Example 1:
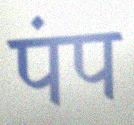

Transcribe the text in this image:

पंप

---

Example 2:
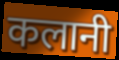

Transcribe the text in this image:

कलानी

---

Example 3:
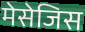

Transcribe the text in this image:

मेसेजिस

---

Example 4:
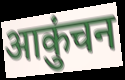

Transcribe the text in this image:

आकुंचन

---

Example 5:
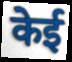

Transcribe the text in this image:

केई